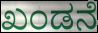
ಖಂಡನೆ